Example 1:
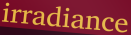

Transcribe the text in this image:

irradiance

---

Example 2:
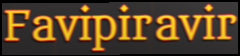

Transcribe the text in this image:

Favipiravir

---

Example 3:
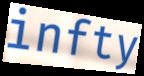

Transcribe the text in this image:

infty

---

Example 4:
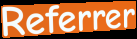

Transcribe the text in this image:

Referrer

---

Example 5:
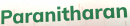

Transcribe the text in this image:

Paranitharan